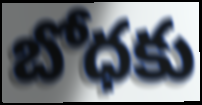
బోధకు